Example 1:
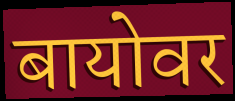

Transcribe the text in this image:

बायोवर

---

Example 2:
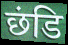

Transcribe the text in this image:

छंडि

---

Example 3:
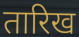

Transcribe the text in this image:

तारिख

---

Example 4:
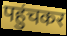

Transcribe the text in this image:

पहुंचकर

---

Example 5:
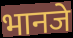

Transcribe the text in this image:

भानजे